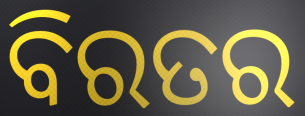
ବିରତର